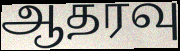
ஆதரவு